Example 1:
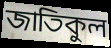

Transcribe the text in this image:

জাতিকুল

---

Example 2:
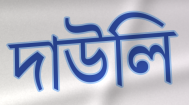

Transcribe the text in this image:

দাউলি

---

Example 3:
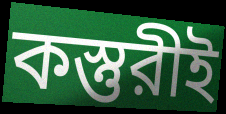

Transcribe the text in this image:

কস্তুরীই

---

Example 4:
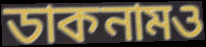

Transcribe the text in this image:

ডাকনামও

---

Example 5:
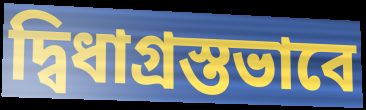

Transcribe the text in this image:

দ্বিধাগ্রস্তভাবে